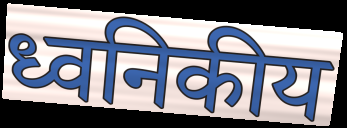
ध्वनिकीय